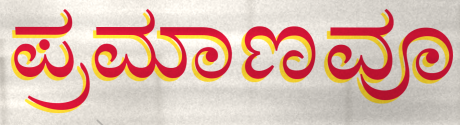
ಪ್ರಮಾಣವೂ